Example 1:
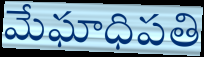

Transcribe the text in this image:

మేఘాధిపతి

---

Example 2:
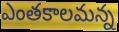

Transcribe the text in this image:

ఎంతకాలమన్న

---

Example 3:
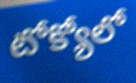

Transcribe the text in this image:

టోక్యోలో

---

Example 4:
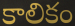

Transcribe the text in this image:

కాలికం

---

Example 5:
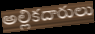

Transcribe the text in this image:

అల్లికదారులు